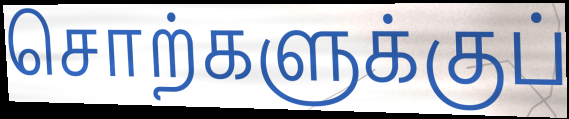
சொற்களுக்குப்